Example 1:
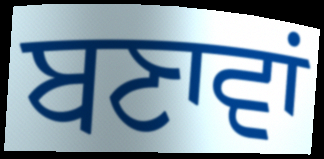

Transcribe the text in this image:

ਬਣਾਵਾਂ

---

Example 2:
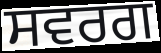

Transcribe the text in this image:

ਸਵਰਗ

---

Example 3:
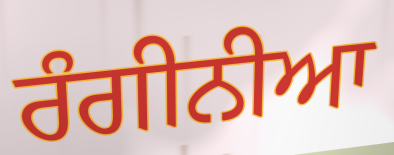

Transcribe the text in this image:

ਰੰਗੀਨੀਆ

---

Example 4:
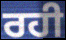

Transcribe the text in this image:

ਰਹੀ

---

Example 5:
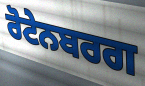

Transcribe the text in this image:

ਰੋਟੇਨਬਰਗ